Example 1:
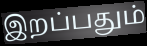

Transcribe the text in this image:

இறப்பதும்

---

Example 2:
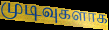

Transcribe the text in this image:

முடிவுகளாக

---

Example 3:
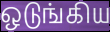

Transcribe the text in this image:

ஒடுங்கிய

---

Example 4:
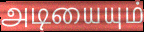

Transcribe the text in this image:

அடியையும்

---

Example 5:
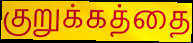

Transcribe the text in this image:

குறுக்கத்தை